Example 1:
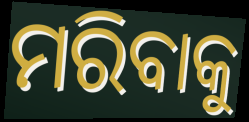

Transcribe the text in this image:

ମରିବାକୁ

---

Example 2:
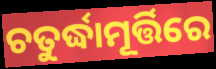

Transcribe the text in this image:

ଚତୁର୍ଦ୍ଧାମୂର୍ତ୍ତିରେ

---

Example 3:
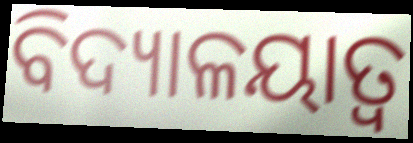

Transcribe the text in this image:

ବିଦ୍ୟାଳୟାତ୍ବ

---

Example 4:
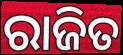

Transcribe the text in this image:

ରାଜିତ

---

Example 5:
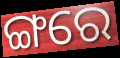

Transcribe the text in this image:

ଙ୍ଗରେ